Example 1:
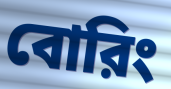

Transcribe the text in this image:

বোরিং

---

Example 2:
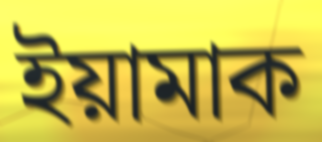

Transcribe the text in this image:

ইয়ামাক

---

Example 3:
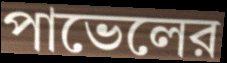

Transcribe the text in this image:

পাভেলের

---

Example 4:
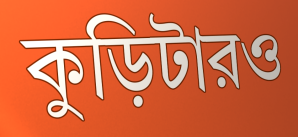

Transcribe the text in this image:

কুড়িটারও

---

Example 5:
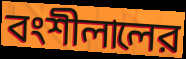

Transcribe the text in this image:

বংশীলালের